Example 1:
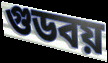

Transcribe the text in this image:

গুডবয়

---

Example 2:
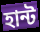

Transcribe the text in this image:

হান্ট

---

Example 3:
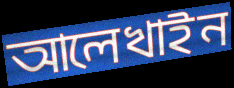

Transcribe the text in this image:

আলেখাইন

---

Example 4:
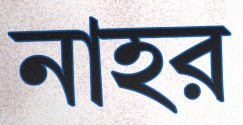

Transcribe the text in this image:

নাহর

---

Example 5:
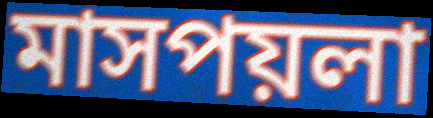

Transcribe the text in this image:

মাসপয়লা